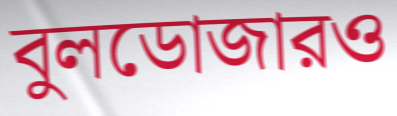
বুলডোজারও